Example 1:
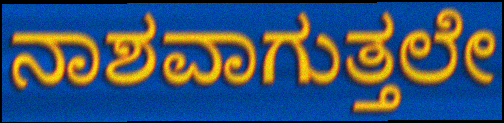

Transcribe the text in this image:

ನಾಶವಾಗುತ್ತಲೇ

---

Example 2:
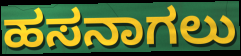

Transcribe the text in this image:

ಹಸನಾಗಲು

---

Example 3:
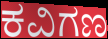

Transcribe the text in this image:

ಕವಿಗಣ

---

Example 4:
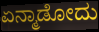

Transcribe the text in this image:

ಏನ್ಮಾಡೋದು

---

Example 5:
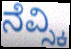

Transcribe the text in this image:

ನೆವ್ಸ್ಕಿ